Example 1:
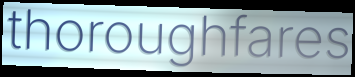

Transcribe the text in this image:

thoroughfares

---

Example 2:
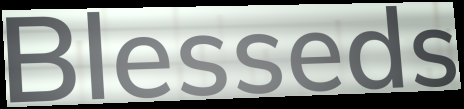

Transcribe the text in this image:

Blesseds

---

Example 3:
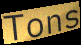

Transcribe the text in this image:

Tons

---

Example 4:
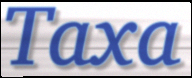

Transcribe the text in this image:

Taxa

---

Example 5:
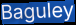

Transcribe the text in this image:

Baguley